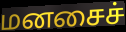
மனசைச்